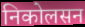
निकोलसन